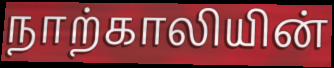
நாற்காலியின்